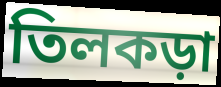
তিলকড়া